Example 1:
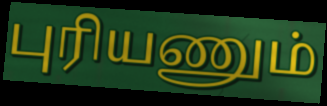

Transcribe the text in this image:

புரியணும்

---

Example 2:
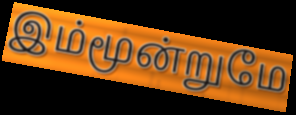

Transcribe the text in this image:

இம்மூன்றுமே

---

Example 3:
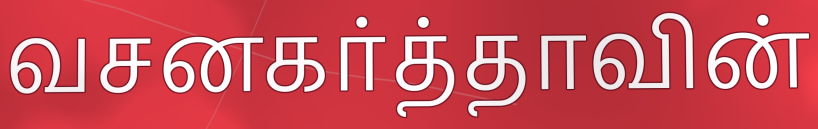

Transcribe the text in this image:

வசனகர்த்தாவின்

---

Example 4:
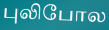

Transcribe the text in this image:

புலிபோல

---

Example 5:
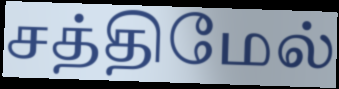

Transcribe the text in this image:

சத்திமேல்